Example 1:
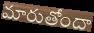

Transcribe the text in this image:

మారుతోందా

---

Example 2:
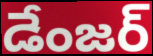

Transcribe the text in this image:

డేంజర్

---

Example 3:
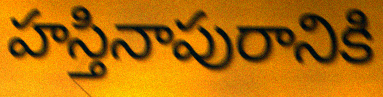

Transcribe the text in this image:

హస్తినాపురానికి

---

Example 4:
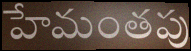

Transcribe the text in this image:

హేమంతపు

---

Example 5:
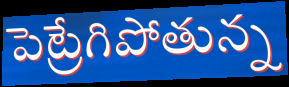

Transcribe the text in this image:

పెట్రేగిపోతున్న